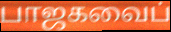
பாஜகவைப்